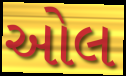
ઓલ